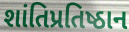
શાંતિપ્રતિષ્ઠાન